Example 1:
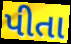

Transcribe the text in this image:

પીતા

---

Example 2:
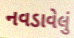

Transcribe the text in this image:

નવડાવેલું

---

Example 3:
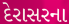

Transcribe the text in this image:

દેરાસરના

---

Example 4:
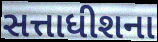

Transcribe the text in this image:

સત્તાધીશના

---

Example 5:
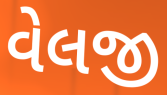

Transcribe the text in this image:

વેલજી